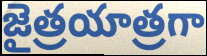
జైత్రయాత్రగా